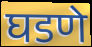
घडणे